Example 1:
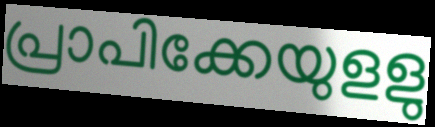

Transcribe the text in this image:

പ്രാപിക്കേയുളളു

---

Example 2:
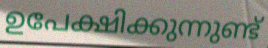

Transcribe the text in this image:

ഉപേക്ഷിക്കുന്നുണ്ട്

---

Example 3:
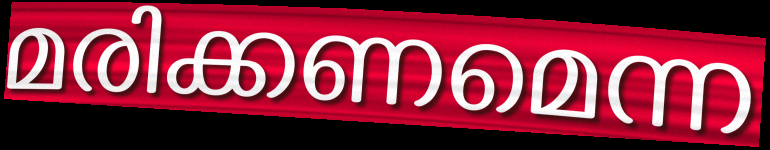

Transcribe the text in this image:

മരിക്കണമെന്ന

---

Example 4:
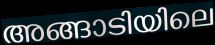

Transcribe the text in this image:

അങ്ങാടിയിലെ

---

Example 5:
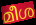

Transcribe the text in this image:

മീശ